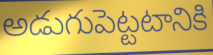
అడుగుపెట్టటానికి